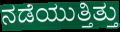
ನಡೆಯುತ್ತಿತ್ತು